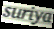
suriya